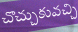
చొచ్చుకువచ్చి